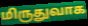
மிருதுவாக